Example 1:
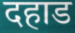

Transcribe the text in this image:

दहाड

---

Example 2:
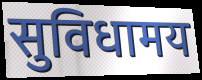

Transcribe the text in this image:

सुविधामय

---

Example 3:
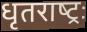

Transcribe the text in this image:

धृतराष्ट्रः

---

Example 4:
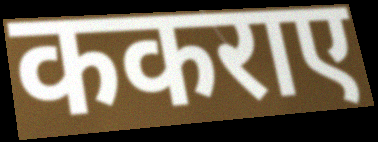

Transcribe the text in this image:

ककराए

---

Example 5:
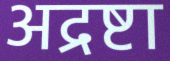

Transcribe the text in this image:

अद्रष्टा